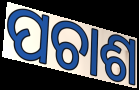
ପଚାଶ